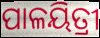
ପାଳୟିତ୍ରୀ